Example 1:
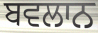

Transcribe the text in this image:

ਬਵਲਾਨ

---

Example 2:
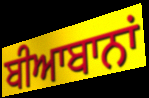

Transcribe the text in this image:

ਬੀਆਬਾਨਾਂ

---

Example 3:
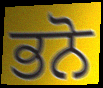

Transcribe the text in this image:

ਭਨੋ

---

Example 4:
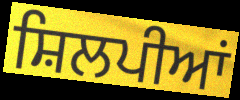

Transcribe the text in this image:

ਸ਼ਿਲਪੀਆਂ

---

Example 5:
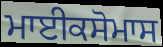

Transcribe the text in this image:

ਮਾਈਕਸੋਮਾਸ